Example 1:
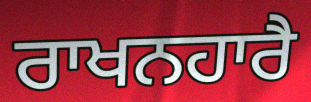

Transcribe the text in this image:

ਰਾਖਨਹਾਰੈ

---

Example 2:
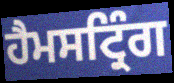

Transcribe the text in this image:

ਹੈਮਸਟ੍ਰਿੰਗ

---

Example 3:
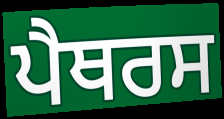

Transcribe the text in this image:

ਪੈਥਰਸ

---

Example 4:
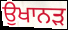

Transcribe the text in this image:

ਉਖਾਨੜ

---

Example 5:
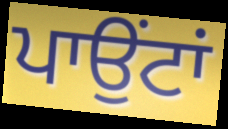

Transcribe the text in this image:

ਪਾਉਂਟਾਂ